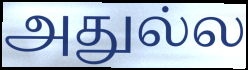
அதுல்ல